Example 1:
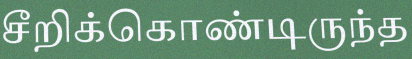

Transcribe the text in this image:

சீறிக்கொண்டிருந்த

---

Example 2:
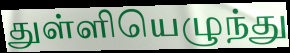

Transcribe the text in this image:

துள்ளியெழுந்து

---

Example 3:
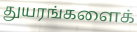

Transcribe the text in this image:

துயரங்களைக்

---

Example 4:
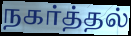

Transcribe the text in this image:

நகர்த்தல்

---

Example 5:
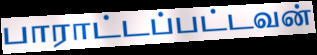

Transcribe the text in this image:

பாராட்டப்பட்டவன்